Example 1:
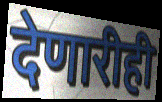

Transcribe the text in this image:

देणारीही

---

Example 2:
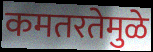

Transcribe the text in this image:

कमतरतेमुळे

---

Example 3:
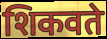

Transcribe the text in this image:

शिकवते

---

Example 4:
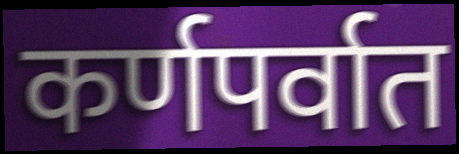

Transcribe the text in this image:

कर्णपर्वात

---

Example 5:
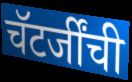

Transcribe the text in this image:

चॅटर्जींची